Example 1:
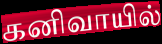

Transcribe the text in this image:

கனிவாயில்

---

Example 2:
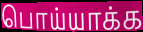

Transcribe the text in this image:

பொய்யாக்க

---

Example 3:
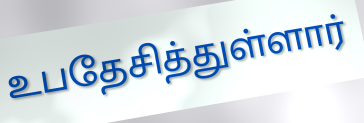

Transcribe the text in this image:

உபதேசித்துள்ளார்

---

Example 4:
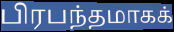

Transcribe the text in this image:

பிரபந்தமாகக்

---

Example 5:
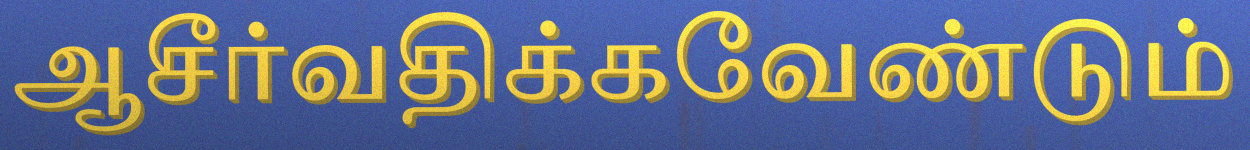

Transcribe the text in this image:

ஆசீர்வதிக்கவேண்டும்